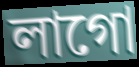
লাগো